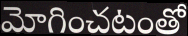
మోగించటంతో